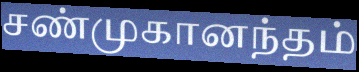
சண்முகானந்தம்